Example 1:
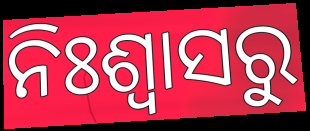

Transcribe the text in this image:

ନିଃଶ୍ଵାସରୁ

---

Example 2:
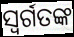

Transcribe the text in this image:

ସ୍ୱର୍ଗତଙ୍କ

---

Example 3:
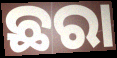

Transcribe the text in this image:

ଛରା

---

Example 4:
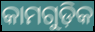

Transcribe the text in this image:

କାମଗୁଡ଼ିକ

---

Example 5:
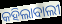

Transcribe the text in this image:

କହିଲାବାଲୀ